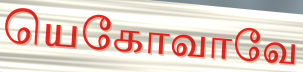
யெகோவாவே